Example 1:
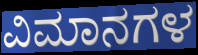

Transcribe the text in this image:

ವಿಮಾನಗಳ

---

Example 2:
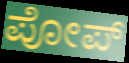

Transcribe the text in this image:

ಪೋಪ್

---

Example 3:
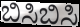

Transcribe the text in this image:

ಬಿಸಿಬಿಸಿ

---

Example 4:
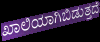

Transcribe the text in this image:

ಖಾಲಿಯಾಗಿಬಿಡುತ್ತದೆ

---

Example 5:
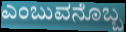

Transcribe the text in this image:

ಎಂಬುವನೊಬ್ಬ